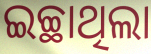
ଇଚ୍ଛାଥିଲା